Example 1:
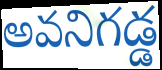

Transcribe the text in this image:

అవనిగడ్డ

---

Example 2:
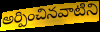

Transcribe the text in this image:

అర్పించినవాటిని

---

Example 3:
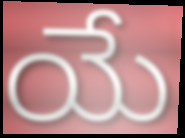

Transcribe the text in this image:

యే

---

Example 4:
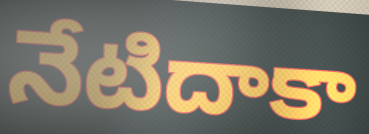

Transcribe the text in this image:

నేటిదాకా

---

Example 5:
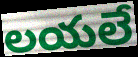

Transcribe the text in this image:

లయలే